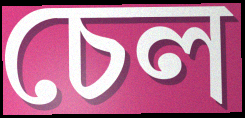
চেল